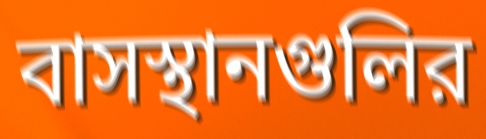
বাসস্থানগুলির